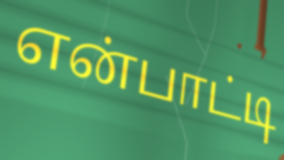
என்பாட்டி